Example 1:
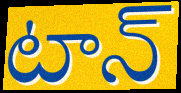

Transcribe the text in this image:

టాన్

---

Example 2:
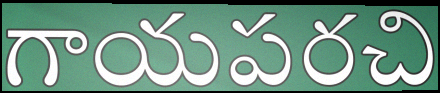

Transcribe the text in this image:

గాయపరచి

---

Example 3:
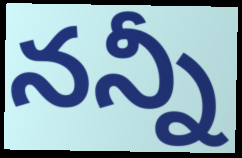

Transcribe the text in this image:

నన్నీ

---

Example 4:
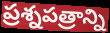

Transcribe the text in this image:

ప్రశ్నపత్రాన్ని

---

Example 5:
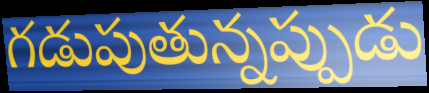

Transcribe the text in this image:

గడుపుతున్నప్పుడు